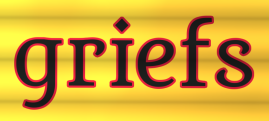
griefs